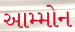
આમ્મોન